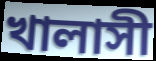
খালাসী